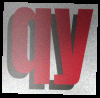
qy